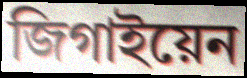
জিগাইয়েন